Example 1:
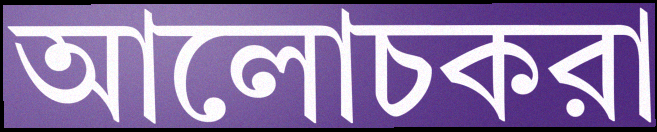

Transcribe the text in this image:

আলোচকরা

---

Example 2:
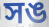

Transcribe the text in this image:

সঙ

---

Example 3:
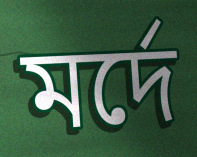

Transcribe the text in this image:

মর্দে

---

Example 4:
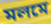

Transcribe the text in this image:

মলমে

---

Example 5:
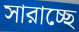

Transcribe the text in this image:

সারাচ্ছে